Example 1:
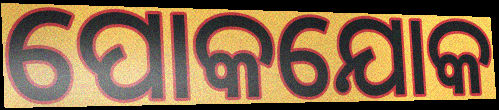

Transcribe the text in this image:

ପୋକଯୋକ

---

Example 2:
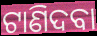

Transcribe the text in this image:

ଟାଣିଦବା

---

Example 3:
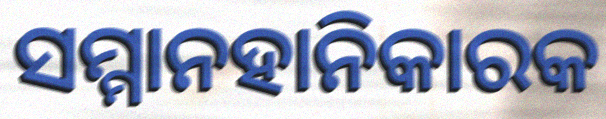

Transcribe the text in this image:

ସମ୍ମାନହାନିକାରକ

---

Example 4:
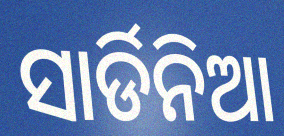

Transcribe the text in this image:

ସାର୍ଡିନିଆ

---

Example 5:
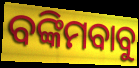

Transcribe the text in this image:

ବଙ୍କିମବାବୁ